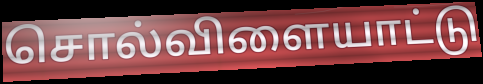
சொல்விளையாட்டு